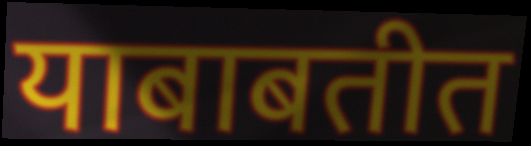
याबाबतीत